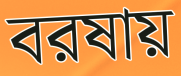
বরষায়